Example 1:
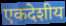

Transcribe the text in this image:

एकदेशीय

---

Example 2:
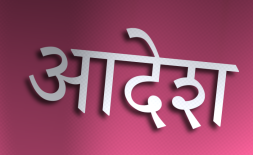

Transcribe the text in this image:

आदेश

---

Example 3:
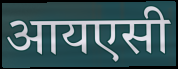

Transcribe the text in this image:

आयएसी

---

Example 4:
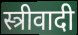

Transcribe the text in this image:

स्त्रीवादी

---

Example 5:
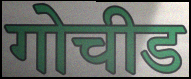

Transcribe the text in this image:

गोचीड